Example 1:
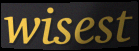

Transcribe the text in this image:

wisest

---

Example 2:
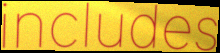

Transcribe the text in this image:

includes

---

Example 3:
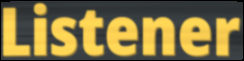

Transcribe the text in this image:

Listener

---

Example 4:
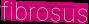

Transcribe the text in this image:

fibrosus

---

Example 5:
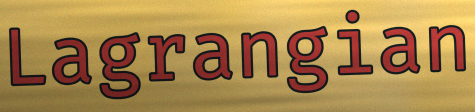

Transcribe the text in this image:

Lagrangian